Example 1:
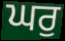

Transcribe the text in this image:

ਘਰੁ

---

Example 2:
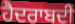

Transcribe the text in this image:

ਹੈਦਰਾਬਦੀ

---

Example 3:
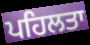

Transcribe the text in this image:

ਪਹਿਲਤਾ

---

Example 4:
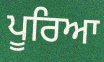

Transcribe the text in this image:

ਪੂਰਿਆ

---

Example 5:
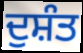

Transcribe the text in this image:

ਦੁਸ਼ੰਤ